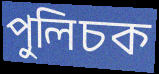
পুলিচক